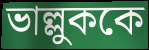
ভাল্লুককে